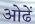
ओढें